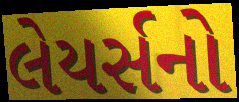
લેયર્સનો